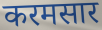
करमसार